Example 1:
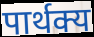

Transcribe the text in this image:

पार्थक्य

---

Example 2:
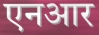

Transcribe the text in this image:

एनआर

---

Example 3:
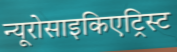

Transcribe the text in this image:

न्यूरोसाइकिएट्रिस्ट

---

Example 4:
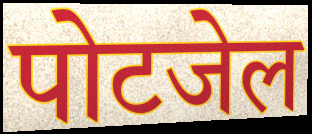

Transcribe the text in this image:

पोटजेल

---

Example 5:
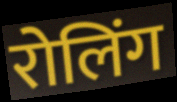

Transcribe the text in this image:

रोलिंग